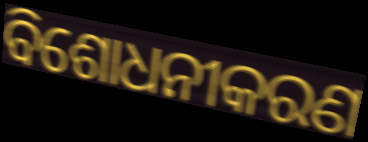
ବିଶୋଧନୀକରଣ